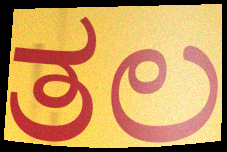
ತಲ